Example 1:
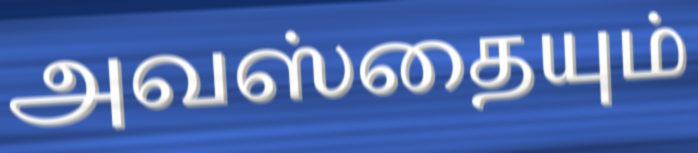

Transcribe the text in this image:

அவஸ்தையும்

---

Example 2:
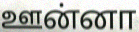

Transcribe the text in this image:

ஊன்னா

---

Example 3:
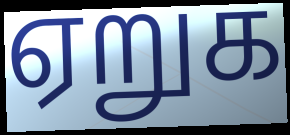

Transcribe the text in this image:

ஏறுக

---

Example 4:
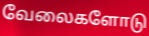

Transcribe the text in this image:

வேலைகளோடு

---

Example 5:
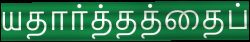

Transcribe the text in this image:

யதார்த்தத்தைப்